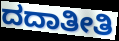
ದದಾತೀತಿ